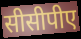
सीसीपीए